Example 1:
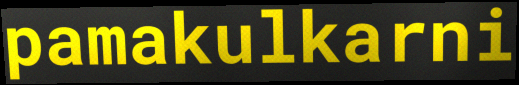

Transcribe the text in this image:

pamakulkarni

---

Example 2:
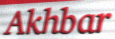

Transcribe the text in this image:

Akhbar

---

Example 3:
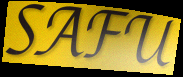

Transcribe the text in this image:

SAFU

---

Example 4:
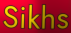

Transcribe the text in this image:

Sikhs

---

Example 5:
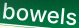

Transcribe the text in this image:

bowels